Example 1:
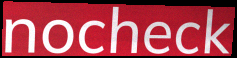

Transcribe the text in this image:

nocheck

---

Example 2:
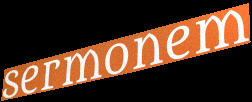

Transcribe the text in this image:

sermonem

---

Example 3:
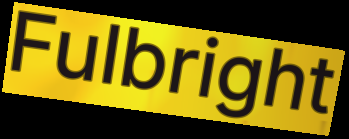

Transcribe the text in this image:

Fulbright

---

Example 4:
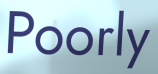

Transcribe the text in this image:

Poorly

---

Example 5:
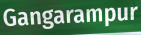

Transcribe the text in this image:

Gangarampur